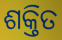
ଶକ୍ତିତ